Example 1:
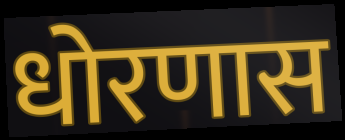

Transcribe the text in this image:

धोरणास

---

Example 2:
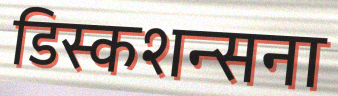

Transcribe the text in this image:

डिस्कशन्सना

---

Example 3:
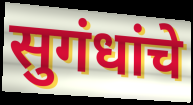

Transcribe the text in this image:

सुगंधांचे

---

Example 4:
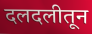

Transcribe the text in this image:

दलदलीतून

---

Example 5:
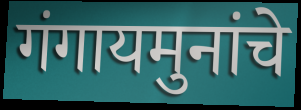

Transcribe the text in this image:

गंगायमुनांचे